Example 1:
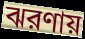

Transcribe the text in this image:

ঝরণায়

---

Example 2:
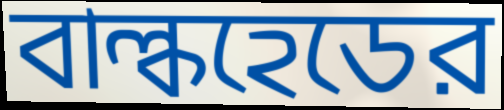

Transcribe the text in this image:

বাল্কহেডের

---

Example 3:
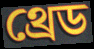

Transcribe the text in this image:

থ্রেড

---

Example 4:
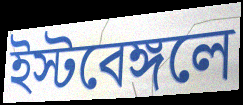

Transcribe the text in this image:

ইস্টবেঙ্গলে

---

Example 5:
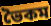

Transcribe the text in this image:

ভৈকম